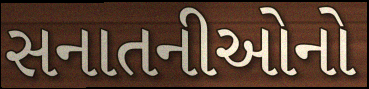
સનાતનીઓનો